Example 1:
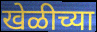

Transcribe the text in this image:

खेळीच्या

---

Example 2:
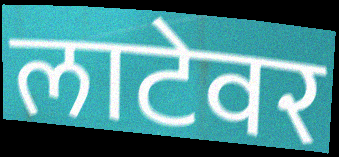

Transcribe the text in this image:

लाटेवर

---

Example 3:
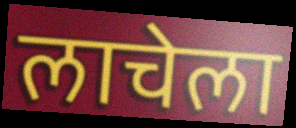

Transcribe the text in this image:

लाचेला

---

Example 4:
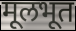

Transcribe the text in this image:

मूलभूत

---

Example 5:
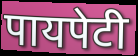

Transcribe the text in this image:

पायपेटी